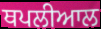
ਥਪਲੀਆਲ